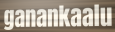
ganankaalu